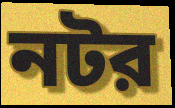
নটর